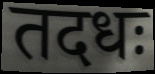
तदधः